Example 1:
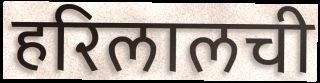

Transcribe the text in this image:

हरिलालची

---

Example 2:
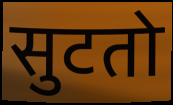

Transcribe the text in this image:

सुटतो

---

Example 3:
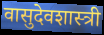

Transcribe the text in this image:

वासुदेवशास्त्री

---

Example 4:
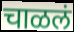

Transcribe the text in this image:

चाळलं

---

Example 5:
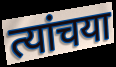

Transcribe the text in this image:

त्यांचया